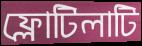
ফ্লোটিলাটি